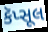
કૅપ્સૂલ